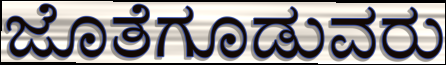
ಜೊತೆಗೂಡುವರು